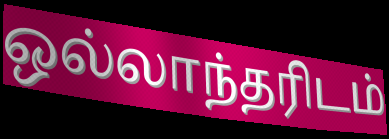
ஒல்லாந்தரிடம்